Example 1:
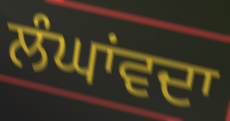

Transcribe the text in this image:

ਲੰਘਾਂਵਦਾ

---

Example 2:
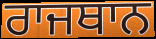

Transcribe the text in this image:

ਰਾਜਥਾਨ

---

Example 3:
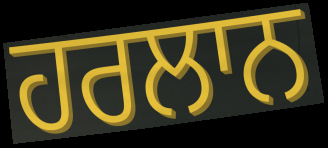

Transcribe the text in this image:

ਹਰਲਾਨ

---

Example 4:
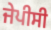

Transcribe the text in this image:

ਜੇਪੀਸੀ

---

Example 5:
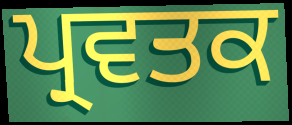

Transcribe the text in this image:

ਪ੍ਰਵਤਕ